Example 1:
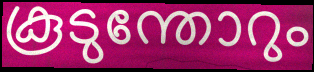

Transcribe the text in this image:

കൂടുന്തോറും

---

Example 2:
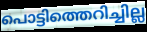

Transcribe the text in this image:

പൊട്ടിത്തെറിച്ചില്ല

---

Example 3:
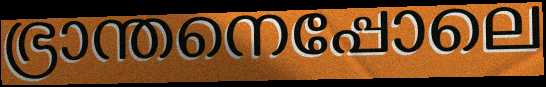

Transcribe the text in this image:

ഭ്രാന്തനെപ്പോലെ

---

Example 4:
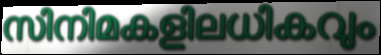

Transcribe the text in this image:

സിനിമകളിലധികവും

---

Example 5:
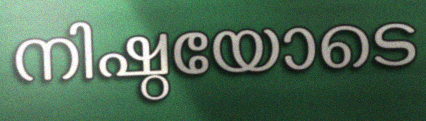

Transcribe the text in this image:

നിഷ്ഠയോടെ